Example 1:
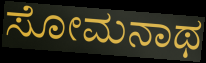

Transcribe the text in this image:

ಸೋಮನಾಥ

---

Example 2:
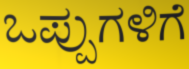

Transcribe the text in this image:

ಒಪ್ಪುಗಳಿಗೆ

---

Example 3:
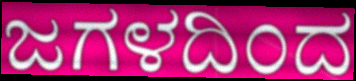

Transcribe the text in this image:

ಜಗಳದಿಂದ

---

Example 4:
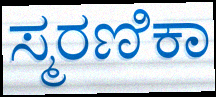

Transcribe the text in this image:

ಸ್ಮರಣಿಕಾ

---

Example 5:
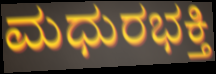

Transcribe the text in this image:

ಮಧುರಭಕ್ತಿ